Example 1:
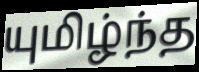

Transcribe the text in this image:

யுமிழ்ந்த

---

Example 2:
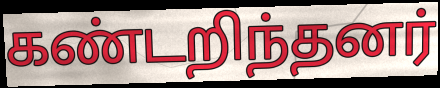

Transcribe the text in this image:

கண்டறிந்தனர்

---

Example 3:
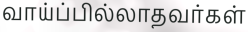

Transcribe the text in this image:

வாய்ப்பில்லாதவர்கள்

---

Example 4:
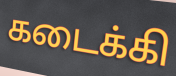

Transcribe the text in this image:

கடைக்கி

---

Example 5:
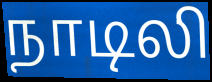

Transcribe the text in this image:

நாடிலி